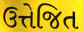
ઉત્તેજિત